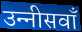
उन्‍नीसवाँ